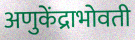
अणुकेंद्राभोवती